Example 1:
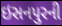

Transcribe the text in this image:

ઇસનપુરની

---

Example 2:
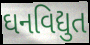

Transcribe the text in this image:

ઘનવિદ્યુત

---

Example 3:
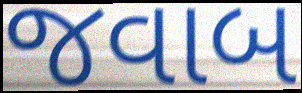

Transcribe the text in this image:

જવાબ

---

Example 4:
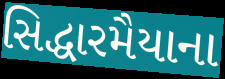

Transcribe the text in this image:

સિદ્ધારમૈયાના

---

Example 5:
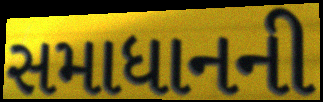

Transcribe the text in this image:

સમાધાનની